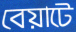
বেয়াটে